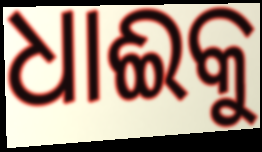
ଧାଈକୁ